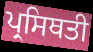
ਪ੍ਰਸਿਥਤੀ